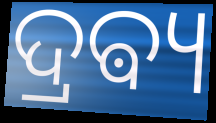
ଦ୍ରଵ୍ୟ